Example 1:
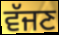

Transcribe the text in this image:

ਵੱਜਣ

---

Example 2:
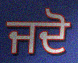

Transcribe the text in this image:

ਜਦੋ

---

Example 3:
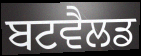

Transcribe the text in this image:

ਬਟਵੈਲਡ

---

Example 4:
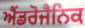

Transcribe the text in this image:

ਐਂਡਰੋਜੈਨਿਕ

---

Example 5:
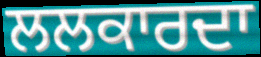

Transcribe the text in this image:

ਲਲਕਾਰਦਾ